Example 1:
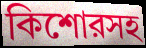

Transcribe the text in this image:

কিশোরসহ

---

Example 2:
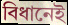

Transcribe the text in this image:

বিধানেই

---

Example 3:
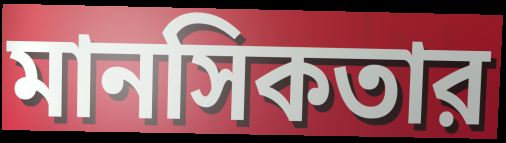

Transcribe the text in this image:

মানসিকতার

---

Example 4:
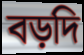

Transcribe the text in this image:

বড়দি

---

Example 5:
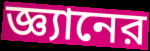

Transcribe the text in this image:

জ্ঞ্যানের